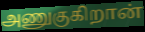
அணுகுகிறான்